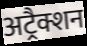
अट्रैक्शन